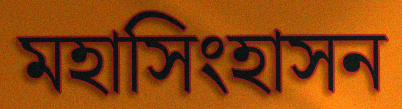
মহাসিংহাসন